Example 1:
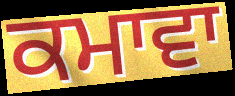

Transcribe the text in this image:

ਕਮਾਵਾ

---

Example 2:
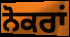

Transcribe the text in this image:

ਨੋਕਰਾਂ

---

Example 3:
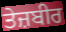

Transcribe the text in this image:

ਤੇਜ਼ਬੀਰ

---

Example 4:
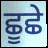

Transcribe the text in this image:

ਛੂਛੇ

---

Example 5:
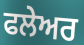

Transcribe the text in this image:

ਫਲੇਅਰ